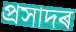
প্ৰসাদৰ